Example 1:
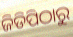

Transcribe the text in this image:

ଜିଡିପିଠାରୁ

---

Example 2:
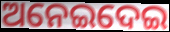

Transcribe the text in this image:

ଅନେଇଦେଇ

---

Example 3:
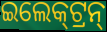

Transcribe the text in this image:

ଇଲେକ୍‌ଟ୍ରନ୍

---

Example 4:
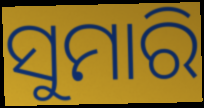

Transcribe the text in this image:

ସୁମାରି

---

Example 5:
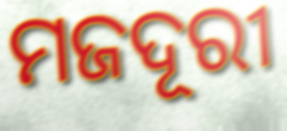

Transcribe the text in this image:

ମଜଦୂରୀ